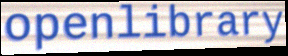
openlibrary